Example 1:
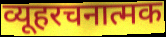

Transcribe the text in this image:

व्यूहरचनात्मक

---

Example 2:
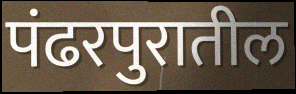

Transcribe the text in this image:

पंढरपुरातील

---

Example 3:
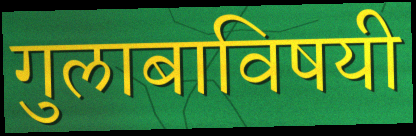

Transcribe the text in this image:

गुलाबाविषयी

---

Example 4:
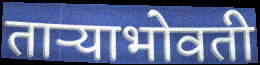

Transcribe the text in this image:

ताऱ्याभोवती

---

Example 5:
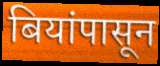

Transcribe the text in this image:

बियांपासून